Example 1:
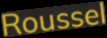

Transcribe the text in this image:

Roussel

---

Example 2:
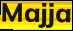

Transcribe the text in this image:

Majja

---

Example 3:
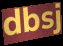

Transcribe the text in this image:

dbsj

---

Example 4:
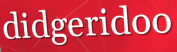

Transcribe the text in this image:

didgeridoo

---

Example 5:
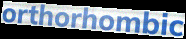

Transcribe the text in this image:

orthorhombic